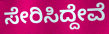
ಸೇರಿಸಿದ್ದೇವೆ